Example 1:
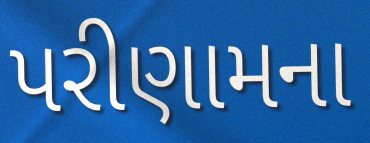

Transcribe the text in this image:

પરીણામના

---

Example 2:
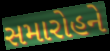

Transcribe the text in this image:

સમારોહને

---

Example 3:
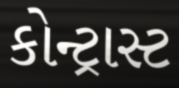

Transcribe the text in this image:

કોન્ટ્રાસ્ટ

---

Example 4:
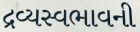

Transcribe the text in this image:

દ્રવ્યસ્વભાવની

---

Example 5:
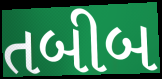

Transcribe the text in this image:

તબીબ